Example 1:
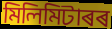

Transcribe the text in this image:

মিলিমিটাৰৰ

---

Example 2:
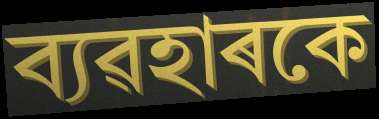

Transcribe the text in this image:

ব্যৱহাৰকে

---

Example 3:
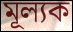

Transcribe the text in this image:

মূল্যক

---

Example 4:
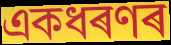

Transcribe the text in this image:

একধৰণৰ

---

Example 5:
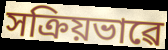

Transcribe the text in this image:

সক্ৰিয়ভাৱে